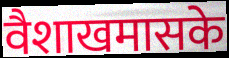
वैशाखमासके